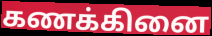
கணக்கினை